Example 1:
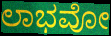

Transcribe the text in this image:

ಲಾಭವೋ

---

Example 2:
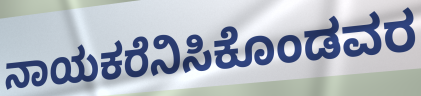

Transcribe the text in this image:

ನಾಯಕರೆನಿಸಿಕೊಂಡವರ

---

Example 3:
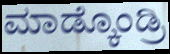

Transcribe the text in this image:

ಮಾಡ್ಕೊಂಡ್ರಿ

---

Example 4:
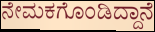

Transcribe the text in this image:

ನೇಮಕಗೊಂಡಿದ್ದಾನೆ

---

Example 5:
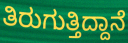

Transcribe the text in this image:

ತಿರುಗುತ್ತಿದ್ದಾನೆ